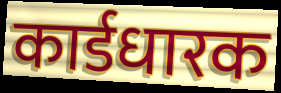
कार्डधारक